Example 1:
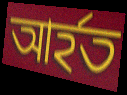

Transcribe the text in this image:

আর্হত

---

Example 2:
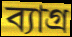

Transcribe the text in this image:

ব্যাগ্র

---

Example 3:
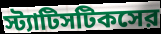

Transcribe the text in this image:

স্ট্যাটিসটিকসের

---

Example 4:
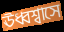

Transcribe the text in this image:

ঊধ্বশ্বাসে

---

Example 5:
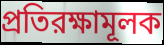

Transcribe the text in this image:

প্রতিরক্ষামূলক